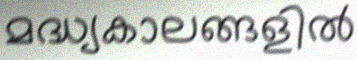
മദ്ധ്യകാലങ്ങളിൽ